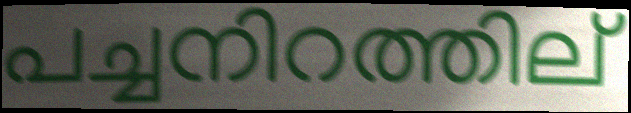
പച്ചനിറത്തില്